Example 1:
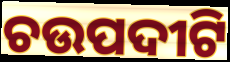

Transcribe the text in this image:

ଚଉପଦୀଟି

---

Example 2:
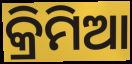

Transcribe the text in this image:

କ୍ରିମିଆ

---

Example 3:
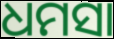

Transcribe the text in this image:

ଧମସା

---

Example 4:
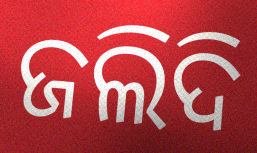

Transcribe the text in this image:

ଜଲିଦି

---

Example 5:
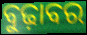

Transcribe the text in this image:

ବୁଢ଼ାବର